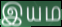
இயம